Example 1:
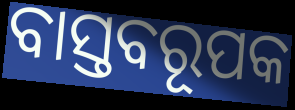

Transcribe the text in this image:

ବାସ୍ତବରୂପକ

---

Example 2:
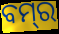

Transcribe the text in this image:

ବମ୍‌ର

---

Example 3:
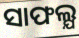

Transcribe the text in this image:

ସାଫଲ୍ଯ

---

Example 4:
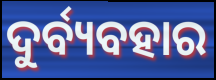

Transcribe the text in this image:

ଦୁର୍ବ୍ୟବହାର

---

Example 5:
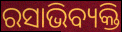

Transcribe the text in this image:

ରସାଭିବ୍ୟକ୍ତି